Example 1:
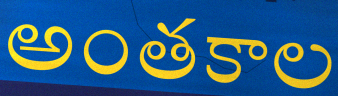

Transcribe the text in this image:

అంతకాల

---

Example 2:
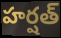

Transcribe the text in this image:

హర్షత్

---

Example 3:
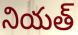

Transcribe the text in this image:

నియత్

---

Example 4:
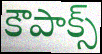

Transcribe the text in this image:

కౌపాక్స్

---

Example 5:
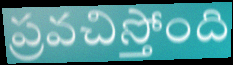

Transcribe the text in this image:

ప్రవచిస్తోంది